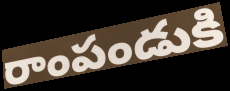
రాంపండుకి